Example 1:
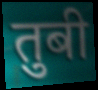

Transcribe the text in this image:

तुबी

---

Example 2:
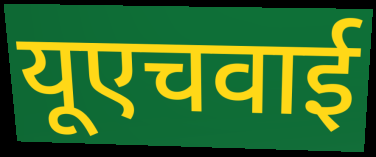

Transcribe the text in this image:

यूएचवाई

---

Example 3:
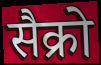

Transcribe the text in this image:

सैक्रो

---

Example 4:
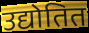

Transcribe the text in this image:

उद्योतित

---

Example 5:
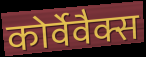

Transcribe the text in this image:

कोर्वेवैक्स